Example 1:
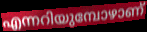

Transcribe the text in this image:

എന്നറിയുമ്പോഴാണ്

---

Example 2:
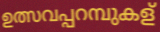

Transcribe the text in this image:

ഉത്സവപ്പറമ്പുകള്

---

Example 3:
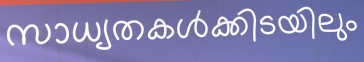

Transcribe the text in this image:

സാധ്യതകൾക്കിടയിലും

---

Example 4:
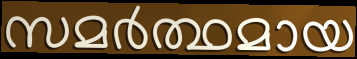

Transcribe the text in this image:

സമർത്ഥമായ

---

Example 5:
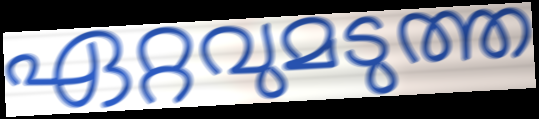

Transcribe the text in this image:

ഏറ്റവുമടുത്ത